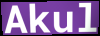
Akul